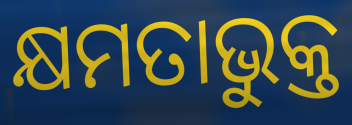
କ୍ଷମତାଭୁକ୍ତ